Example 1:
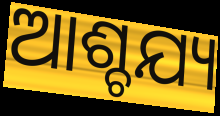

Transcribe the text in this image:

ଆଶ୍ଚଯ୍ୟ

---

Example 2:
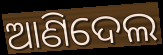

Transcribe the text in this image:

ଆଣିଦେଲ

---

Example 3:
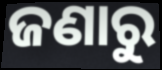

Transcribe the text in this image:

ଜଣାରୁ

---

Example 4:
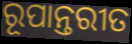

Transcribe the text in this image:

ରୂପାନ୍ତରୀତ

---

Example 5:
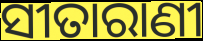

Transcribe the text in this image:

ସୀତାରାଣୀ